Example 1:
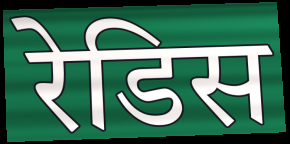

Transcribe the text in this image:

रेडिस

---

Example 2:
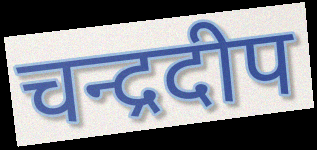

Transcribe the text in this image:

चन्द्रदीप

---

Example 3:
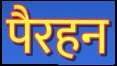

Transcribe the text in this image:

पैरहन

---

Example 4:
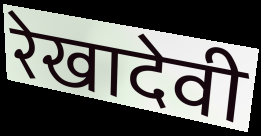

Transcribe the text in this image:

रेखादेवी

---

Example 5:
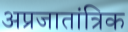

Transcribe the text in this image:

अप्रजातांत्रिक